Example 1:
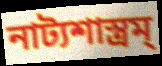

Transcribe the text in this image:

নাট্যশাস্ত্রম্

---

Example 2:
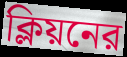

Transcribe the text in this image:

ক্লিয়নের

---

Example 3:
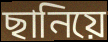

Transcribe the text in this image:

ছানিয়ে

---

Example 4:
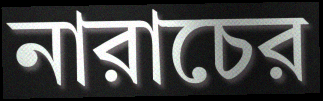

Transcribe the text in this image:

নারাচের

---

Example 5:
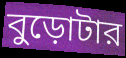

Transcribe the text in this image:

বুড়োটার